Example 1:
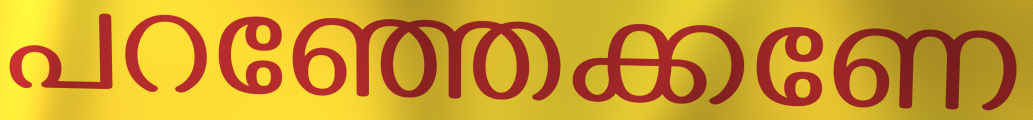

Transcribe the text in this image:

പറഞ്ഞേക്കണേ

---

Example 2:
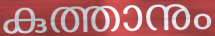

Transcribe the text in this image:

കുത്താനും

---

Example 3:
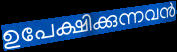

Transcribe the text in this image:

ഉപേക്ഷിക്കുന്നവൻ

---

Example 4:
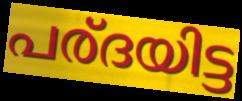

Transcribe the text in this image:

പര്ദയിട്ട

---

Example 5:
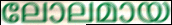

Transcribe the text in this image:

ലോലമായ